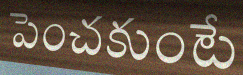
పెంచకుంటే